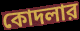
কোদলার